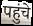
पहुंचे